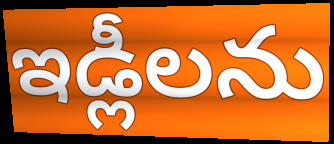
ఇడ్లీలను